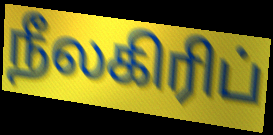
நீலகிரிப்